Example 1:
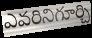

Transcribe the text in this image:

ఎవరినిగూర్చి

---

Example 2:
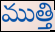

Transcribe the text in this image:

ముత్తి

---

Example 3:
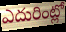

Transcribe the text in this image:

ఎదురింట్లో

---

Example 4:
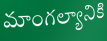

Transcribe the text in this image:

మాంగల్యానికి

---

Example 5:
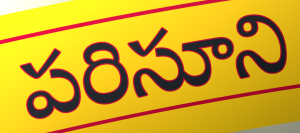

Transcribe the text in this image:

పరిసూని